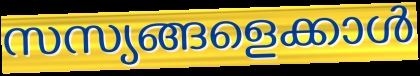
സസ്യങ്ങളെക്കാൾ